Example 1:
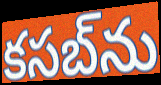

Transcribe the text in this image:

కసబ్‌ను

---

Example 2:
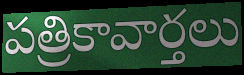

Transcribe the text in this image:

పత్రికావార్తలు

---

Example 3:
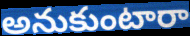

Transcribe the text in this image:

అనుకుంటారా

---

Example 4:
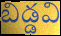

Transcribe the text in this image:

బిడ్డవి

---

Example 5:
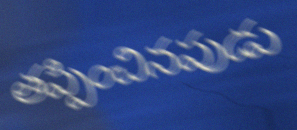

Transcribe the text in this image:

తప్పించినపుడు